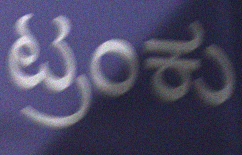
ಟ್ರಂಕು